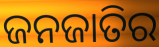
ଜନଜାତିର